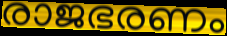
രാജഭരണം